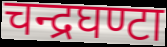
चन्द्रघण्टा